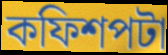
কফিশপটা